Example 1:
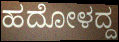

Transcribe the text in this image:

ಹದೋಳದ್ದ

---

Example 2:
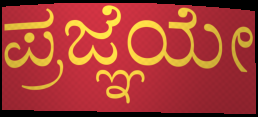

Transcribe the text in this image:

ಪ್ರಜ್ಞೆಯೇ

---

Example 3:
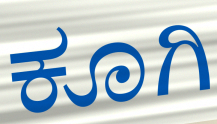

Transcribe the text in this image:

ಕೂಗಿ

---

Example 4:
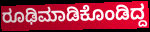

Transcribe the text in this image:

ರೂಢಿಮಾಡಿಕೊಂಡಿದ್ದ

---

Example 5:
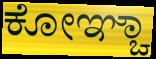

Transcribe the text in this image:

ಕೋಞ್ಚಾ